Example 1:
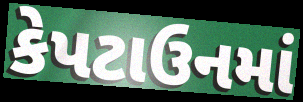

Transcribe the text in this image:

કેપટાઉનમાં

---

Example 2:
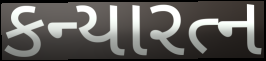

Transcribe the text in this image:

કન્યારત્ન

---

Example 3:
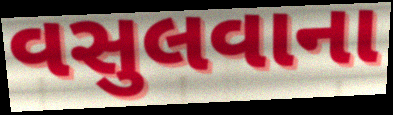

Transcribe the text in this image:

વસુલવાના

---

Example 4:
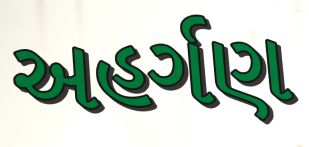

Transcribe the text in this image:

અહર્ગણ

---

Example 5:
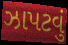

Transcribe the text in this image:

ઝાપટવું